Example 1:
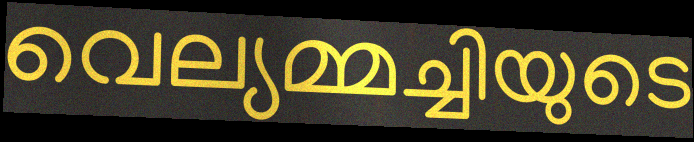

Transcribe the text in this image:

വെല്യമ്മച്ചിയുടെ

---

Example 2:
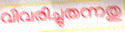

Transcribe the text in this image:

വിവരിച്ചുതന്നതു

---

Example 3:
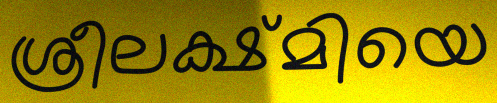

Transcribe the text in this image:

ശ്രീലക്ഷ്മിയെ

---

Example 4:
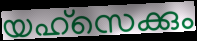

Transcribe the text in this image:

യഹ്സെക്കും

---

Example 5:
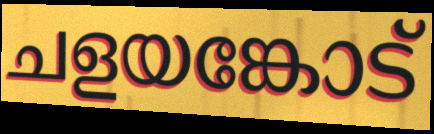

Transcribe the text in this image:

ചളയങ്കോട്